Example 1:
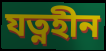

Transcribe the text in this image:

যত্নহীন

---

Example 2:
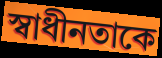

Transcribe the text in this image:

স্বাধীনতাকে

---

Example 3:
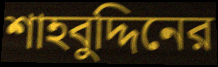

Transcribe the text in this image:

শাহবুদ্দিনের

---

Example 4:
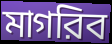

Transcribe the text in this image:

মাগরিব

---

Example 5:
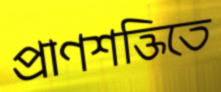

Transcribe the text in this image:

প্রাণশক্তিতে